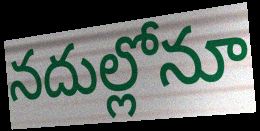
నదుల్లోనూ